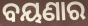
ବୟଣାର